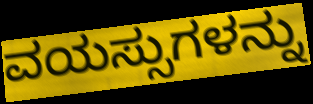
ವಯಸ್ಸುಗಳನ್ನು